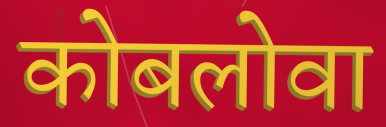
कोबलोवा